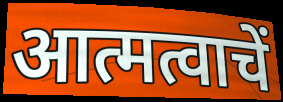
आत्मत्वाचें